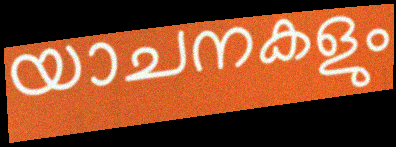
യാചനകളും